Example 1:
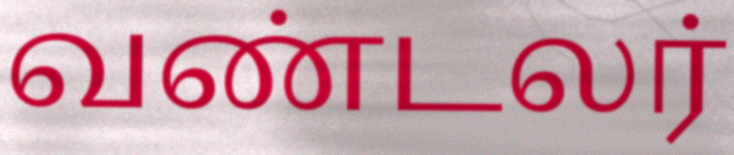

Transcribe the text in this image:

வண்டலர்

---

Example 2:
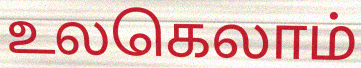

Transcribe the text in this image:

உலகெலாம்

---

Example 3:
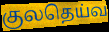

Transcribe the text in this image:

குலதெய்வ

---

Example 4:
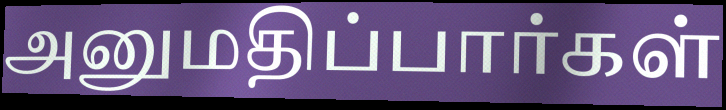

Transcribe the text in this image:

அனுமதிப்பார்கள்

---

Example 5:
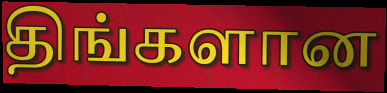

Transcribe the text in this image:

திங்களான